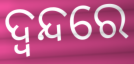
ଦ୍ୱନ୍ଦରେ